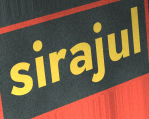
sirajul